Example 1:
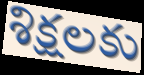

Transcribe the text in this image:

శిక్షలకు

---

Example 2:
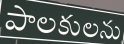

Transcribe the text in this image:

పాలకులను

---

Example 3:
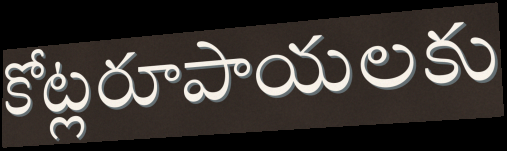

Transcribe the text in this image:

కోట్లరూపాయలకు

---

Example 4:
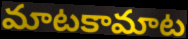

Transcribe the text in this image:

మాటకామాట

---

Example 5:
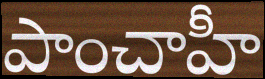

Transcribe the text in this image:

పాంచాహీ